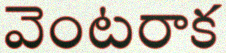
వెంటరాక